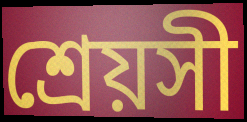
শ্রেয়সী